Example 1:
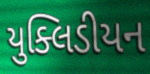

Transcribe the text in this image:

યુક્લિડીયન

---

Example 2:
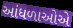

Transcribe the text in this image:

આંધળાઓએ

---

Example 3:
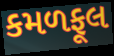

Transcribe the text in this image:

કમળફૂલ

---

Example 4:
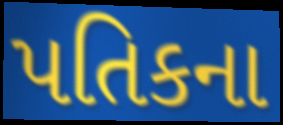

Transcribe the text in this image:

પતિકના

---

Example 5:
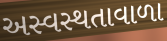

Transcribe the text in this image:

અસ્વસ્થતાવાળા